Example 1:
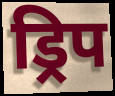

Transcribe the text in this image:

ड्रिप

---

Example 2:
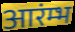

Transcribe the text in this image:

आरंम्भ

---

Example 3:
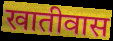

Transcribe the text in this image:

खातीवास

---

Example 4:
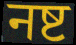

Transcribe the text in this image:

नष्ट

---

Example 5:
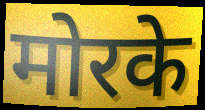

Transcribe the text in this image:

मोरके